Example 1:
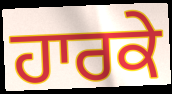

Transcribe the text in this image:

ਹਾਰਕੇ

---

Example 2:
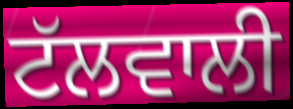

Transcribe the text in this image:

ਟੱਲਵਾਲੀ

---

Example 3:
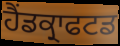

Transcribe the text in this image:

ਹੈਂਡਕ੍ਰਾਫਟਡ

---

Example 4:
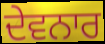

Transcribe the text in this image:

ਦੇਵਨਾਰ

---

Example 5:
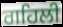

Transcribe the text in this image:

ਗਹਿਲੀ